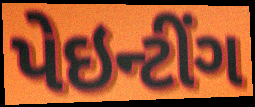
પેઇન્ટીંગ